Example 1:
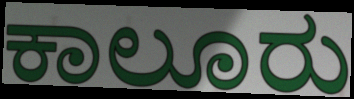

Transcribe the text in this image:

ಕಾಲೂರು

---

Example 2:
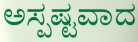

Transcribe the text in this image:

ಅಸ್ಪಷ್ಟವಾದ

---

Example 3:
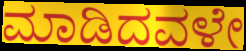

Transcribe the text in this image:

ಮಾಡಿದವಳೇ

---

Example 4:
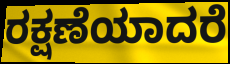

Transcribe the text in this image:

ರಕ್ಷಣೆಯಾದರೆ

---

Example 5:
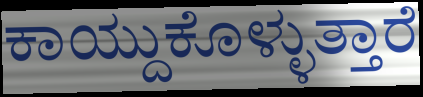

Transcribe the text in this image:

ಕಾಯ್ದುಕೊಳ್ಳುತ್ತಾರೆ